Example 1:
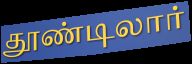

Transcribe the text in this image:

தூண்டிலார்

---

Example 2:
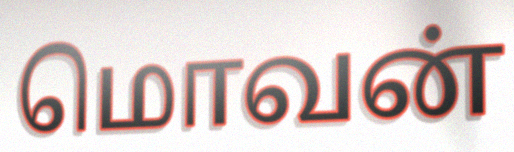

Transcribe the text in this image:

மொவன்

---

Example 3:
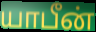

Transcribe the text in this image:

யாபீன்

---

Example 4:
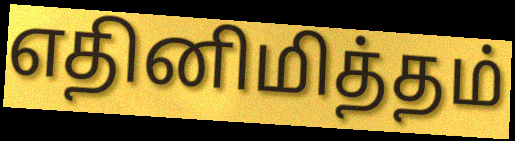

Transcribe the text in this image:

எதினிமித்தம்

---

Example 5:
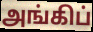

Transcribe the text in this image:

அங்கிப்